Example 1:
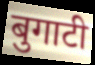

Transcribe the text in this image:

बुगाटी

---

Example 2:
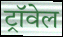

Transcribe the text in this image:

ट्रॉवेल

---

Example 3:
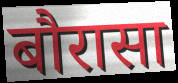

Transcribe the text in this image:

बौरासा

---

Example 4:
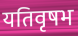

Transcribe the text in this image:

यतिवृषभ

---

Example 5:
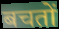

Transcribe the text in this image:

बचतों